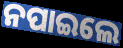
ନପାଇଲେ